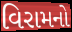
વિરામનો